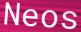
Neos